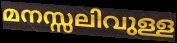
മനസ്സലിവുള്ള